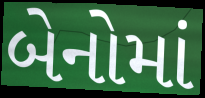
બેનોમાં